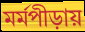
মর্মপীড়ায়